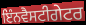
ਇੰਨਵੈਸਟੀਗੇਟਰ